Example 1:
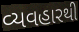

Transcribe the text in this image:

વ્યવહારથી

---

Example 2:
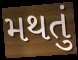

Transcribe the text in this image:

મથતું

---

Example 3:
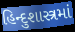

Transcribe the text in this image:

હિન્દુશાસ્ત્રમાં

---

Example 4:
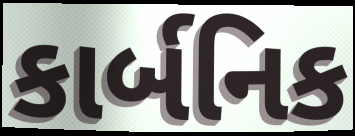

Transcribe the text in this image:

કાર્બનિક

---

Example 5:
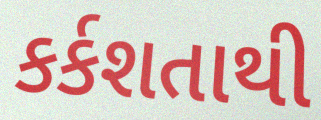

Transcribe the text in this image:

કર્કશતાથી